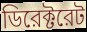
ডিরেক্টরেট